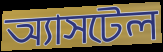
অ্যাসটেল